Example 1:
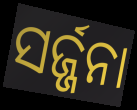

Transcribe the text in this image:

ସର୍ଜ୍ଜନା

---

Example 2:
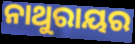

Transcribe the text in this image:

ନାଥୁରାୟର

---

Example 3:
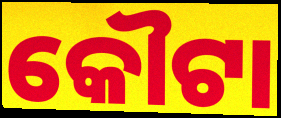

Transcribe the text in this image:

କୌଟା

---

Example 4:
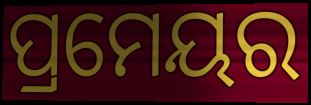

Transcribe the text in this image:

ପ୍ରମେୟର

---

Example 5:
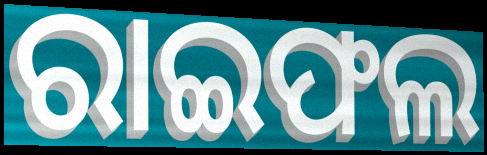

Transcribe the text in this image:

ରାଇଫଲ